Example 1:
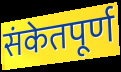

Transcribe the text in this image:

संकेतपूर्ण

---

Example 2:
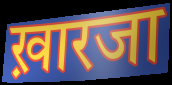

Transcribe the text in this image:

ख़ारजा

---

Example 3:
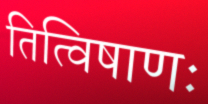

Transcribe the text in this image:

तित्विषाणः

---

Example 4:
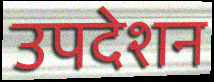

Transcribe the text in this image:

उपदेशन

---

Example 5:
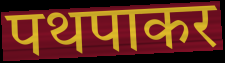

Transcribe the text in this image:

पथपाकर